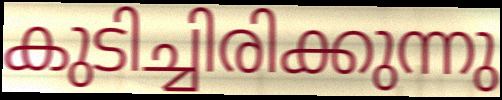
കുടിച്ചിരിക്കുന്നു